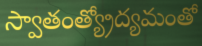
స్వాతంత్య్రోద్యమంతో